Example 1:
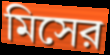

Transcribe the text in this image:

মিসের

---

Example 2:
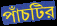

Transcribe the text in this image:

পাঁচটির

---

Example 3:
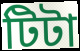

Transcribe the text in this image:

টিটা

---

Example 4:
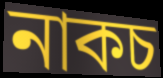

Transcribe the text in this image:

নাকচ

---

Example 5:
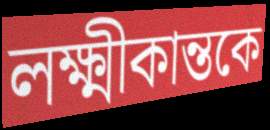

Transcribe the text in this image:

লক্ষ্মীকান্তকে